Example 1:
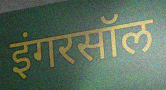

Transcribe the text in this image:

इंगरसॉल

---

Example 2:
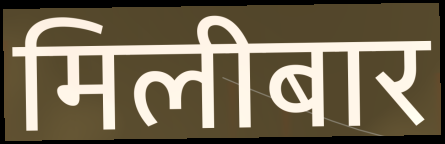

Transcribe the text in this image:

मिलीबार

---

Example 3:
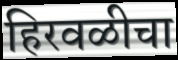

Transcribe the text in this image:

हिरवळीचा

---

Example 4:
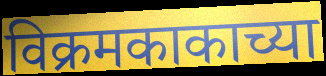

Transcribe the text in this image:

विक्रमकाकाच्या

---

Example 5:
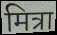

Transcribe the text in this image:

मित्रा